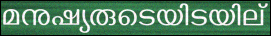
മനുഷ്യരുടെയിടയില്